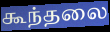
கூந்தலை